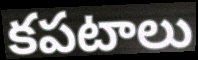
కపటాలు